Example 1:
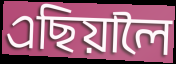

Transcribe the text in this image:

এছিয়ালৈ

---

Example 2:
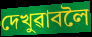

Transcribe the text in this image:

দেখুৱাবলৈ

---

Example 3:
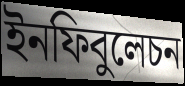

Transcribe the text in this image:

ইনফিবুলেচন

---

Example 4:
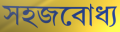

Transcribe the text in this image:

সহজবোধ্য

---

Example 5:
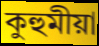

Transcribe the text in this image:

কুহুমীয়া